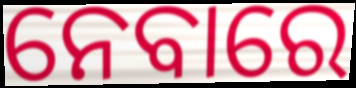
ନେବାରେ